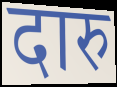
दारु